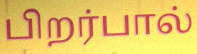
பிறர்பால்